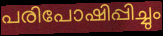
പരിപോഷിപ്പിച്ചും